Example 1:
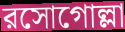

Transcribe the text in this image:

রসোগোল্লা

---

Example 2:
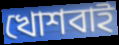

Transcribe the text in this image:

খোশবাই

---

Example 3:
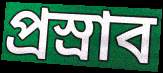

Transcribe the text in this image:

প্রস্রাব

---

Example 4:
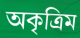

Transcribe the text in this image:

অকৃত্রিম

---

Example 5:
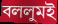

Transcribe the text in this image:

বললুমই